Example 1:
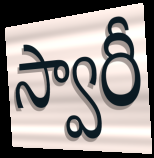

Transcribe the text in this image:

స్వారీ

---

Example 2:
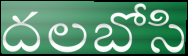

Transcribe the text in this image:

దలబోసి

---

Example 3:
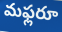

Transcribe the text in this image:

మఫ్లరూ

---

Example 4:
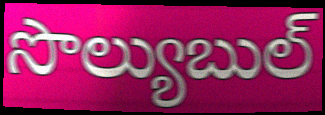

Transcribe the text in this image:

సొల్యుబుల్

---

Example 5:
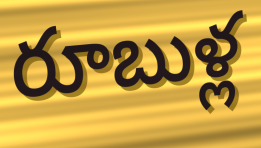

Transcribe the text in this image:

రూబుళ్ల